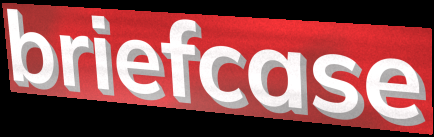
briefcase